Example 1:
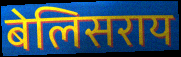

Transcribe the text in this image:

बेलिसराय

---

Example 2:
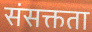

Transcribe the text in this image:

संसक्तता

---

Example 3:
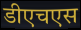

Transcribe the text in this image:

डीएचएस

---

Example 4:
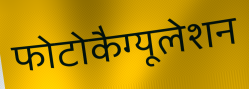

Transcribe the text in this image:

फोटोकैग्यूलेशन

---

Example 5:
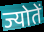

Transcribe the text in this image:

ज्योतें